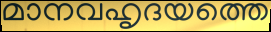
മാനവഹൃദയത്തെ